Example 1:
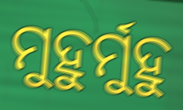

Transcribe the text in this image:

ମୁହୁର୍ମୁହୁ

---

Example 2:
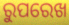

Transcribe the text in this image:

ରୁପରେଖ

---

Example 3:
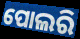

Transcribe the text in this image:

ପୋଲରି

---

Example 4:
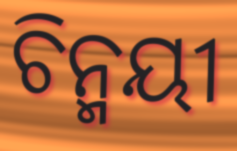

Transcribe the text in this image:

ଚିନ୍ମୟୀ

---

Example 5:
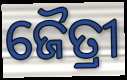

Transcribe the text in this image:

ଜୈତ୍ରୀ